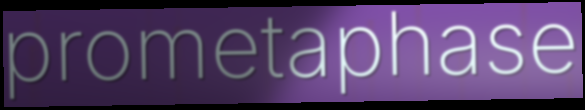
prometaphase